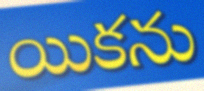
యికను